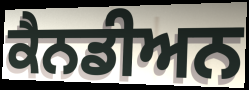
ਕੈਨਡੀਅਨ